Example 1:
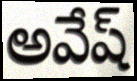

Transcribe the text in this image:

అవేష్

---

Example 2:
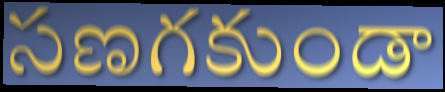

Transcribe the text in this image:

సణగకుండా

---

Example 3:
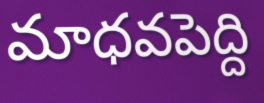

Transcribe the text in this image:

మాధవపెద్ది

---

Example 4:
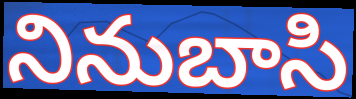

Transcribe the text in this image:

నినుబాసి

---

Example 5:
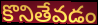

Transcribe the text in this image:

కొనితేవడం